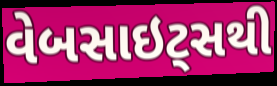
વેબસાઇટ્સથી